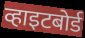
व्हाइटबोर्ड